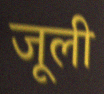
जूली